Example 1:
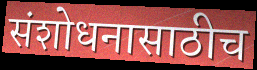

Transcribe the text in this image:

संशोधनासाठीच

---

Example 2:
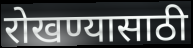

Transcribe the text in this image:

रोखण्यासाठी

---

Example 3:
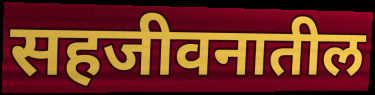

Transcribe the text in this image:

सहजीवनातील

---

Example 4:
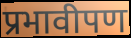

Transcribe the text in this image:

प्रभावीपण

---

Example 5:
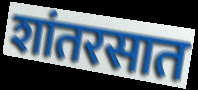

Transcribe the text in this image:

शांतरसात